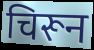
चिरून